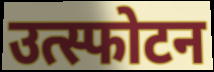
उत्स्फोटन